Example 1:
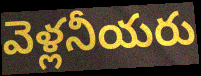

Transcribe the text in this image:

వెళ్లనీయరు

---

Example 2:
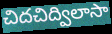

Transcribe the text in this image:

చిదచిద్విలాసా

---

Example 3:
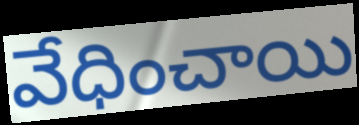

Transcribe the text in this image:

వేధించాయి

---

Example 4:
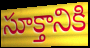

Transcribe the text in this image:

సూక్తానికి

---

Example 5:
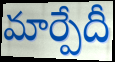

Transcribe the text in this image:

మార్పేదీ